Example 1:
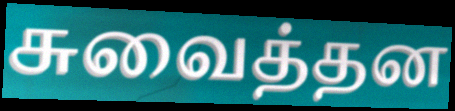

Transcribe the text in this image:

சுவைத்தன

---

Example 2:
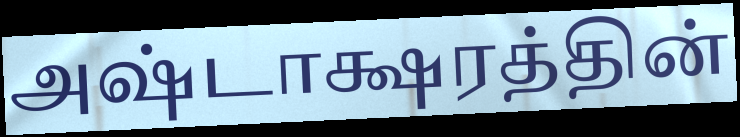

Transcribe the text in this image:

அஷ்டாக்ஷரத்தின்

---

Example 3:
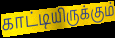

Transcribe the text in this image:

காட்டியிருக்கும்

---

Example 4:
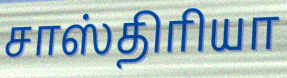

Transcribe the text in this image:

சாஸ்திரியா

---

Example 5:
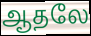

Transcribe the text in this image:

ஆதலே